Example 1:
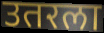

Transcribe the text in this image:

उतरला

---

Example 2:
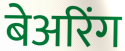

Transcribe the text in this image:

बेअरिंग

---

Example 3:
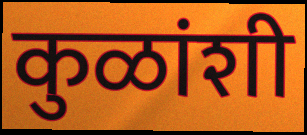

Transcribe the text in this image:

कुळांशी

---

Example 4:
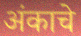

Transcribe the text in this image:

अंकाचे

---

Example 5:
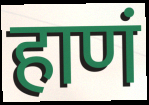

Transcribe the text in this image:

हाणं